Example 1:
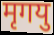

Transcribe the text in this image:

मृगयु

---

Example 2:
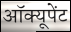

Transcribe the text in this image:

ऑक्यूपेंट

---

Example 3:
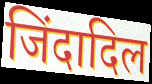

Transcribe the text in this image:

जिंदादिल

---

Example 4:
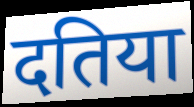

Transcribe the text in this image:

दतिया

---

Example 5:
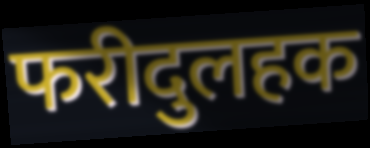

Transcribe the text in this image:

फरीदुलहक